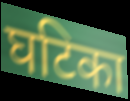
घटिका